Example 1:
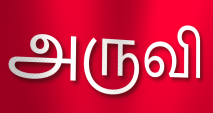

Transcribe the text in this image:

அருவி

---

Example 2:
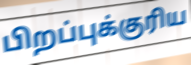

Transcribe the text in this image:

பிறப்புக்குரிய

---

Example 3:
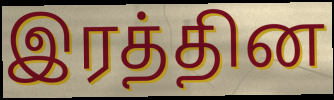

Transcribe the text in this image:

இரத்தின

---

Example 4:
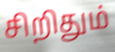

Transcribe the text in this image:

சிறிதும்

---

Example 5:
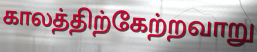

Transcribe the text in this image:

காலத்திற்கேற்றவாறு